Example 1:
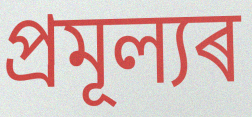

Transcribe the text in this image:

প্ৰমূল্যৰ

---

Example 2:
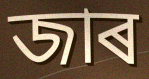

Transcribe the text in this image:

জাৰ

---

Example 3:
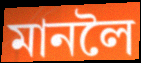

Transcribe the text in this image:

মানলৈ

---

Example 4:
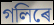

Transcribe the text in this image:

গলিৰে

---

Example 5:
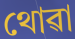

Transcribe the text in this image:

থোৱা